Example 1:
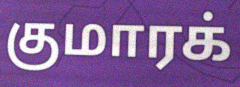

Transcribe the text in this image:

குமாரக்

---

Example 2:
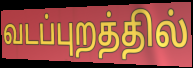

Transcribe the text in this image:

வடப்புறத்தில்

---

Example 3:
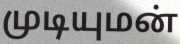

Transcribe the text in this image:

முடியுமன்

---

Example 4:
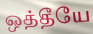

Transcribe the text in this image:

ஒத்தீயே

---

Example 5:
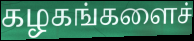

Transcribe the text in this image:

கழகங்களைச்